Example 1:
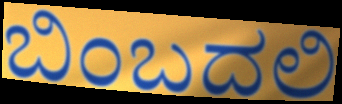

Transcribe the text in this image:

ಬಿಂಬದಲಿ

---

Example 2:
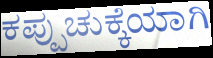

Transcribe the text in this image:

ಕಪ್ಪುಚುಕ್ಕೆಯಾಗಿ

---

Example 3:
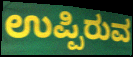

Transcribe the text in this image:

ಉಪ್ಪಿರುವ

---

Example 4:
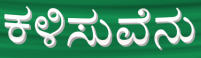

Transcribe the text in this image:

ಕಳಿಸುವೆನು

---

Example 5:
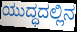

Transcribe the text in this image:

ಯುದ್ಧದಲ್ಲಿನ